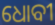
ଧୋବୀ